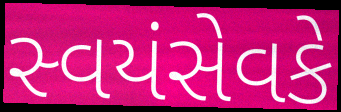
સ્વયંસેવકે